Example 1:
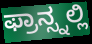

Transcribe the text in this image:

ಫ್ರಾನ್ಸ್ನಲ್ಲಿ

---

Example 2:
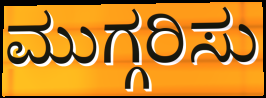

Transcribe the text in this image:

ಮುಗ್ಗರಿಸು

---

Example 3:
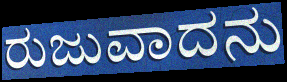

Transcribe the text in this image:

ರುಜುವಾದನು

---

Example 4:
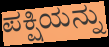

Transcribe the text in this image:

ಪಕ್ಷಿಯನ್ನು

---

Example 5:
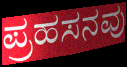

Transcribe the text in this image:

ಪ್ರಹಸನವು